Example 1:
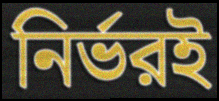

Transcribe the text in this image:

নির্ভরই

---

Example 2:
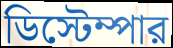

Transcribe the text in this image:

ডিস্টেম্পার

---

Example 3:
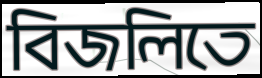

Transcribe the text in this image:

বিজলিতে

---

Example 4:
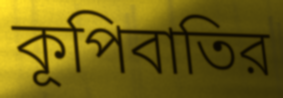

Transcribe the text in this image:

কূপিবাতির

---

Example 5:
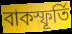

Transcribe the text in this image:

বাকস্ফূর্তি